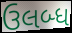
ઉલબ્ધ